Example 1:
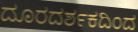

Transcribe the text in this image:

ದೂರದರ್ಶಕದಿಂದ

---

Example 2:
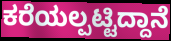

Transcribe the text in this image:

ಕರೆಯಲ್ಪಟ್ಟಿದ್ದಾನೆ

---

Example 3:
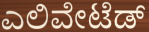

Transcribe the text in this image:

ಎಲಿವೇಟೆಡ್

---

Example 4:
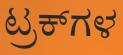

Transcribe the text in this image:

ಟ್ರಕ್‌ಗಳ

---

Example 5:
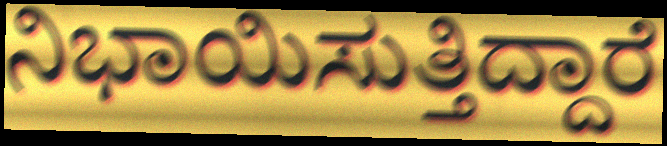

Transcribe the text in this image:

ನಿಭಾಯಿಸುತ್ತಿದ್ದಾರೆ